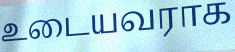
உடையவராக